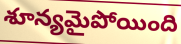
శూన్యమైపోయింది